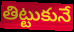
తిట్టుకునే